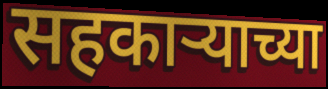
सहकार्‍याच्या